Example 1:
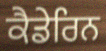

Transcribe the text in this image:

ਕੈਡੇਰਿਨ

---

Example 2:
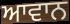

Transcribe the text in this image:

ਆਵਾਨ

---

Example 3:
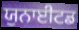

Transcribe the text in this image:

ਯੁਨਾਈਟਡ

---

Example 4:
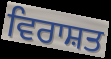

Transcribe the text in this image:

ਵਿਰਾਸ਼ਤ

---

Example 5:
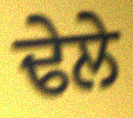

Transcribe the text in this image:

ਢੇਲੇ